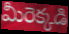
మీరెక్కడి